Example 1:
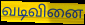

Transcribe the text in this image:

வடிவினை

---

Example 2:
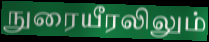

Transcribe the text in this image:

நுரையீரலிலும்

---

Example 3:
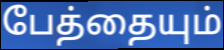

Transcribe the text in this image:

பேத்தையும்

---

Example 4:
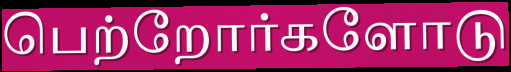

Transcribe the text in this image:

பெற்றோர்களோடு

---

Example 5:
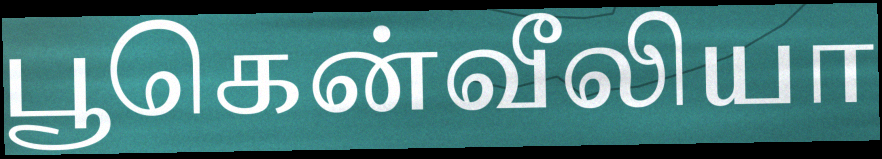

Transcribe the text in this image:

பூகென்வீலியா